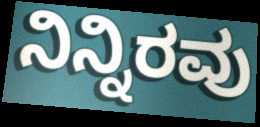
ನಿನ್ನಿರವು